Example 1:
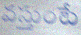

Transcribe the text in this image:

వస్తుంటే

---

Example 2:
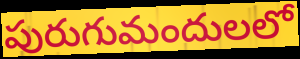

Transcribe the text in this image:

పురుగుమందులలో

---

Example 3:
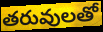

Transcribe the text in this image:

తరువులతో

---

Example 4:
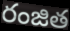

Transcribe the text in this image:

రంజిత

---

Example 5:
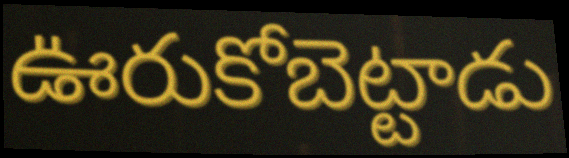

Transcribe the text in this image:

ఊరుకోబెట్టాడు